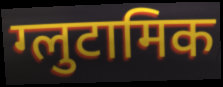
ग्लुटामिक